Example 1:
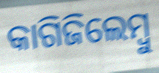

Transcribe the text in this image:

କାଗିଜିଲେମ୍ବୁ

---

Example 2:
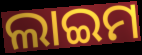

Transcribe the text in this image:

ଲାଇମ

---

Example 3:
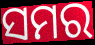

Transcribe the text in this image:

ସମର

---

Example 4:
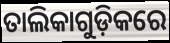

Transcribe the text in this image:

ତାଲିକାଗୁଡ଼ିକରେ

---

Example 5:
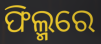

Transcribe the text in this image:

ଫିଲ୍ମରେ